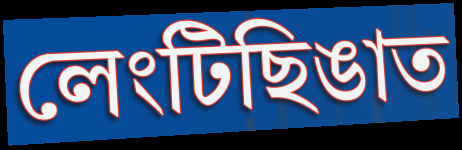
লেংটিছিঙাত